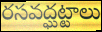
రసవద్ఘట్టాలు